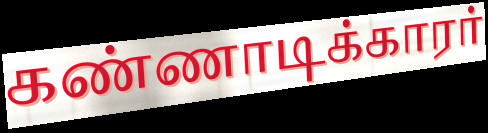
கண்ணாடிக்காரர்